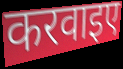
करवाइए